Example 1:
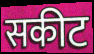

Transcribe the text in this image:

सकीट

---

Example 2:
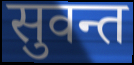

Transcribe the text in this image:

सुवन्त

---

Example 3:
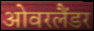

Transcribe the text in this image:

ओवरलैंडर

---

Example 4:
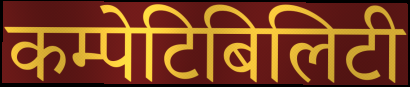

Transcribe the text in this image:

कम्पेटिबिलिटी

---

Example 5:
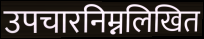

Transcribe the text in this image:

उपचारनिम्नलिखित